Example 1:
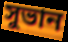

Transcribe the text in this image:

সুভান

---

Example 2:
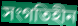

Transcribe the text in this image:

সংগতিহীন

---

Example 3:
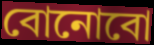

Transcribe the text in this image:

বোনোবো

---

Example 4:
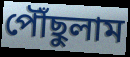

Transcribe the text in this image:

পৌঁছুলাম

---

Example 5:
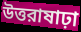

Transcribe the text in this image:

উত্তরাষাঢ়া